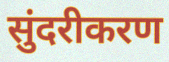
सुंदरीकरण